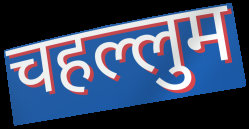
चहल्लुम